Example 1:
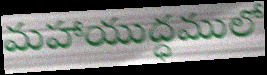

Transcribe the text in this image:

మహాయుద్ధములో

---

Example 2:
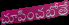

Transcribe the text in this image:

చూపించబోతే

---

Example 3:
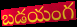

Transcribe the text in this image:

బడయంగ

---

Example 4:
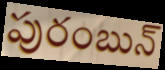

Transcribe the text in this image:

పురంబున్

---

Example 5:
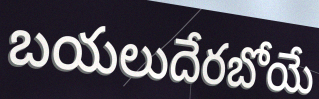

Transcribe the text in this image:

బయలుదేరబోయే